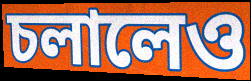
চলালেও